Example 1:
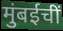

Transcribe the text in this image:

मुंबईचीं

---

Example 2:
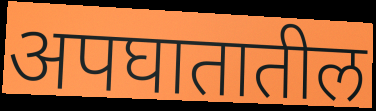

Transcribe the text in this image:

अपघातातील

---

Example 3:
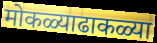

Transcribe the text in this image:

मोकळ्याढाकळ्या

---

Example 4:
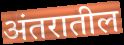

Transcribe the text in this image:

अंतरातील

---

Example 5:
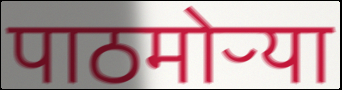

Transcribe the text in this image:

पाठमोऱ्या